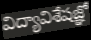
విద్యావిశేషజ్ఞో